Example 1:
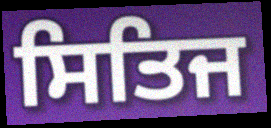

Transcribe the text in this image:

ਸਿਤਿਜ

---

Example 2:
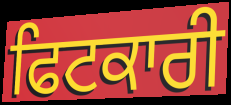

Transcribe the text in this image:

ਫਿਟਕਾਰੀ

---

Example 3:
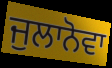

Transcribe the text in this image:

ਜੁਲਾਨੋਵਾ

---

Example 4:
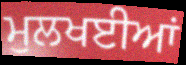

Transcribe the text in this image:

ਮੁਲਖਈਆਂ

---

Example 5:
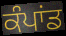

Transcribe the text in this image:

ਕੰਪਾਂਡ